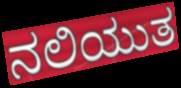
ನಲಿಯುತ